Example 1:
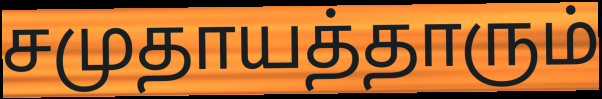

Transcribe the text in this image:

சமுதாயத்தாரும்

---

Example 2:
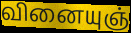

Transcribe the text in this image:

வினையுஞ்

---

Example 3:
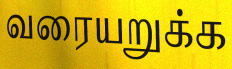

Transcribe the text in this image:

வரையறுக்க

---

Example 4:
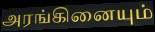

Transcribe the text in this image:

அரங்கினையும்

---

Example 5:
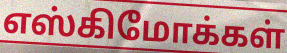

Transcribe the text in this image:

எஸ்கிமோக்கள்